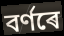
বৰ্ণৰে